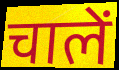
चालें